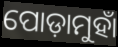
ପୋଡ଼ାମୁହାଁ